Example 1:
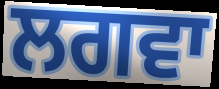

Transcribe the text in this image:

ਲਗਵਾ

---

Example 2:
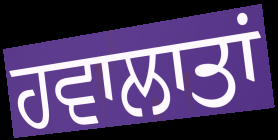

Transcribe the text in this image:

ਹਵਾਲਾਤਾਂ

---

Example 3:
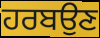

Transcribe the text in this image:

ਹਰਬਉਣ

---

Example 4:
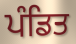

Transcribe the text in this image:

ਪੰਡਿਤ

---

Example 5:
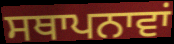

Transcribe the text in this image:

ਸਥਾਪਨਾਵਾਂ